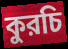
কুরচি